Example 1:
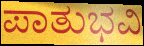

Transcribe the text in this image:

ಪಾತುಭವಿ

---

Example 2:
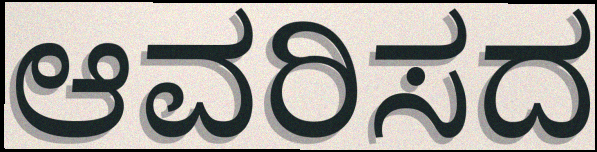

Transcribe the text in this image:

ಆವರಿಸದ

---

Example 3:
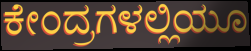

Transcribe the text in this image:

ಕೇಂದ್ರಗಳಲ್ಲಿಯೂ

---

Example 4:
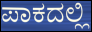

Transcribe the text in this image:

ಪಾಕದಲ್ಲಿ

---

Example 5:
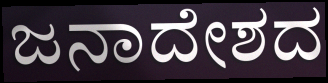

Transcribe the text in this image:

ಜನಾದೇಶದ